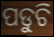
ପଡୁଚି